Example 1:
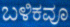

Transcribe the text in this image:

ಬಳಿಕವೂ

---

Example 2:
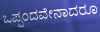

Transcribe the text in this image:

ಒಪ್ಪಂದವೇನಾದರೂ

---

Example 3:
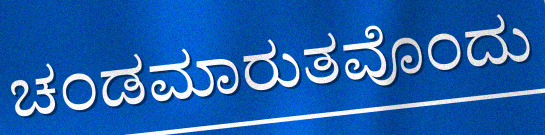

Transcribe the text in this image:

ಚಂಡಮಾರುತವೊಂದು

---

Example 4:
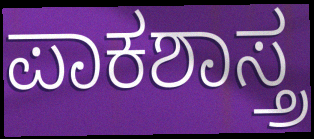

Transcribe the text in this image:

ಪಾಕಶಾಸ್ತ್ರ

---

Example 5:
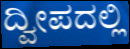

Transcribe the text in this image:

ದ್ವೀಪದಲ್ಲಿ